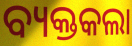
ବ୍ୟକ୍ତକଲା